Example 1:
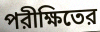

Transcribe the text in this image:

পরীক্ষিতের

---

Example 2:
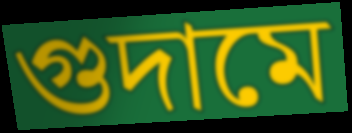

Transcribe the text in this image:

গুদামে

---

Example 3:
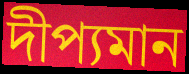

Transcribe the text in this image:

দীপ্যমান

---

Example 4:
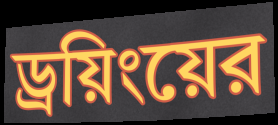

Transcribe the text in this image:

ড্রয়িংয়ের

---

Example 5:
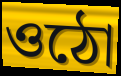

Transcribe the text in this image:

ওঠো